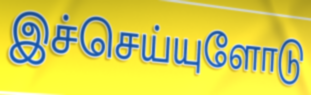
இச்செய்யுளோடு